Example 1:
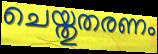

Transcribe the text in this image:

ചെയ്തുതരണം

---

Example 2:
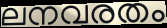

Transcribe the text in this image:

ലനവരതം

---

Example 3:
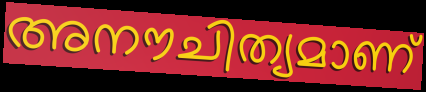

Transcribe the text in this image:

അനൗചിത്യമാണ്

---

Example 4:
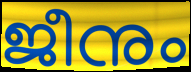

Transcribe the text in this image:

ജീനും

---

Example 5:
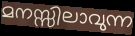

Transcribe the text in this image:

മനസ്സിലാവുന്ന